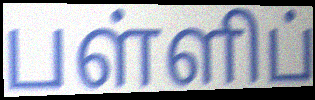
பள்ளிப்